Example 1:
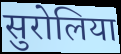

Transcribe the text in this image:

सुरोलिया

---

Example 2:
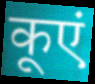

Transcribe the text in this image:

कूएं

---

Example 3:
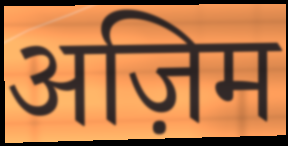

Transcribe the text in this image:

अज़िम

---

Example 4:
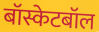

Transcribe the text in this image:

बॉस्केटबॉल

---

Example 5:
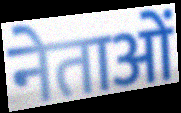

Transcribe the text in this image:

नेताओं